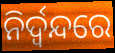
ନିର୍ଦ୍ୱନ୍ଦରେ